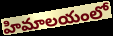
హిమాలయంలో